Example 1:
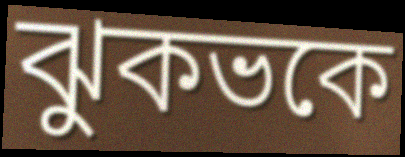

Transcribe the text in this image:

ঝুকভকে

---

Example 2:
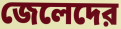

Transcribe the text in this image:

জেলেদের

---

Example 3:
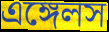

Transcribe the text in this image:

এঙ্গেলস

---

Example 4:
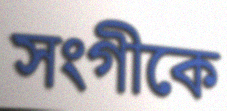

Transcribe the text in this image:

সংগীকে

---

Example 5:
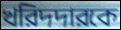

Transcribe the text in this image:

খরিদদারকে